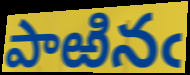
పాఱినఁ